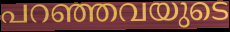
പറഞ്ഞവയുടെ